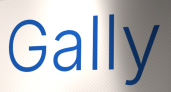
Gally